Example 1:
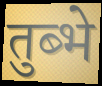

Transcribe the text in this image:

तुब्भे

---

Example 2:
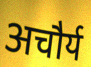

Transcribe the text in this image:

अचौर्य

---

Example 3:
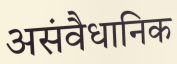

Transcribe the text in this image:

असंवैधानिक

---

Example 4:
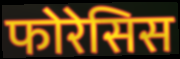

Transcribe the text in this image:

फोरेसिस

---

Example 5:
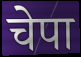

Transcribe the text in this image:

चेपा